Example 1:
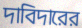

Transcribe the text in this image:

দাবিদারের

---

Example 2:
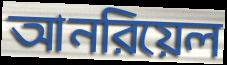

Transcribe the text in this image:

আনরিয়েল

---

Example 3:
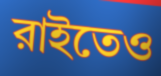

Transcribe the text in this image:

রাইতেও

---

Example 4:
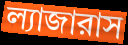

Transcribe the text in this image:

ল্যাজারাস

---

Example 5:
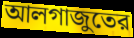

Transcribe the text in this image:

আলগাজুতের